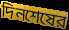
দিনশেষের